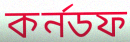
কর্নডফ